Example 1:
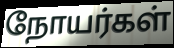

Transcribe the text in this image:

நோயர்கள்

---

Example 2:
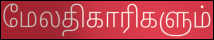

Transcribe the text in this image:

மேலதிகாரிகளும்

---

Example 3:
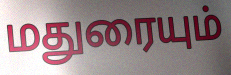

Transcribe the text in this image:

மதுரையும்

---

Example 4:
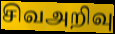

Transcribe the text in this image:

சிவஅறிவு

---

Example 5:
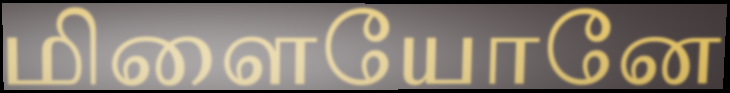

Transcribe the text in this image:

மிளையோனே